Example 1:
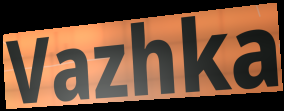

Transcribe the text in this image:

Vazhka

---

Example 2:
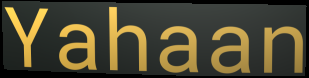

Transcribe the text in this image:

Yahaan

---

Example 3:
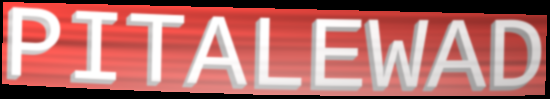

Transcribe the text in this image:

PITALEWAD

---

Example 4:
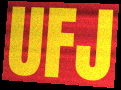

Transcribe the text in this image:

UFJ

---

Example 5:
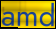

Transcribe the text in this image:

amd